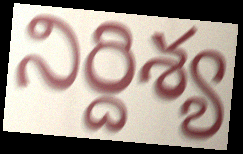
నిర్దిశ్య